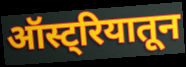
ऑस्ट्रियातून